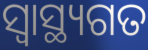
ସ୍ବାସ୍ଥ୍ୟଗତ